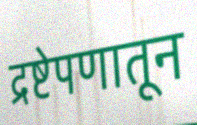
द्रष्टेपणातून